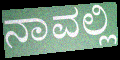
ನಾವಲ್ಲಿ